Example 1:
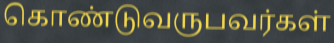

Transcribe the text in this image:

கொண்டுவருபவர்கள்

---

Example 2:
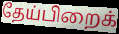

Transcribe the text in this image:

தேய்பிறைக்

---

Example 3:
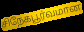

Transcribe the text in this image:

சிநேகபூர்வமான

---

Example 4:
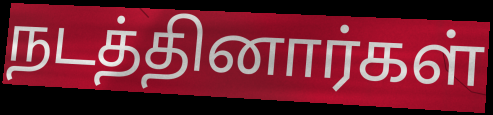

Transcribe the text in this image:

நடத்தினார்கள்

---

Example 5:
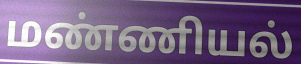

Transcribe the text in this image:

மண்ணியல்